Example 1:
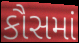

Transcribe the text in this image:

કૌસમાં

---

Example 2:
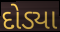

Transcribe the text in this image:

દોડ્યા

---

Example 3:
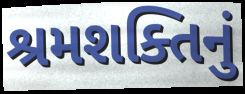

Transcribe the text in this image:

શ્રમશક્તિનું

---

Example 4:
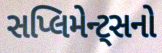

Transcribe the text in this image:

સપ્લિમેન્ટ્સનો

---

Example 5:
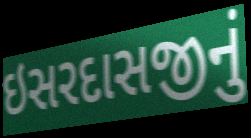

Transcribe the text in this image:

ઇસરદાસજીનું